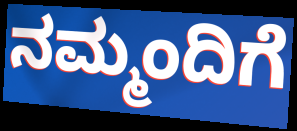
ನಮ್ಮಂದಿಗೆ